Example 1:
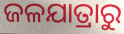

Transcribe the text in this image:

ଜଳଯାତ୍ରାରୁ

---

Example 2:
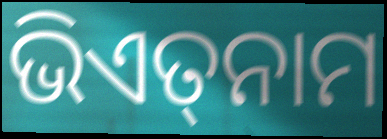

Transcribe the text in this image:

ଭିଏତ୍‌ନାମ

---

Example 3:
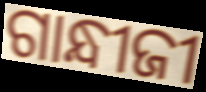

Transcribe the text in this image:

ଗାନ୍ଧୀଜୀ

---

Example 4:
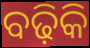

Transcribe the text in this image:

ବଢ଼ିକି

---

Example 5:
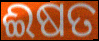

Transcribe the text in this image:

ଈଷତ